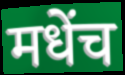
मधेंच